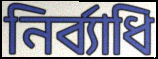
নির্ব্যাধি